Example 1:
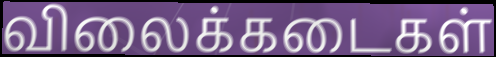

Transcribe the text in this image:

விலைக்கடைகள்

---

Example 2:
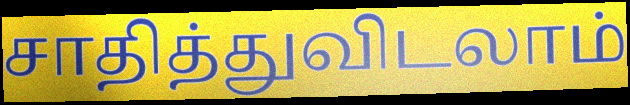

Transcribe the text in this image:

சாதித்துவிடலாம்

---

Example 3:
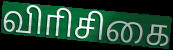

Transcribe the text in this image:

விரிசிகை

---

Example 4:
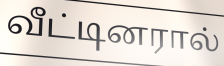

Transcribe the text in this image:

வீட்டினரால்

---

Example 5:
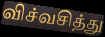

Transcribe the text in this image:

விச்வசித்து